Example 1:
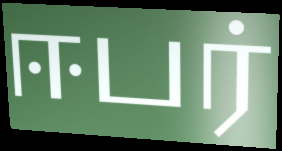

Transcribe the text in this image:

ஈபர்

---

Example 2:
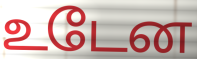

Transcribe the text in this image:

உடேன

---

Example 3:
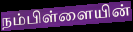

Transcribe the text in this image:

நம்பிள்ளையின்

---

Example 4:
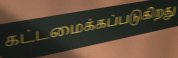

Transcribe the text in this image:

கட்டமைக்கப்படுகிறது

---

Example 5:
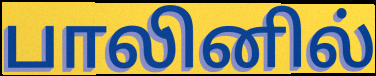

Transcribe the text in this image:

பாலினில்